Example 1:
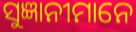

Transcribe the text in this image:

ସୁଜ୍ଞାନୀମାନେ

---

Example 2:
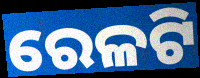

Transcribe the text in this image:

ରେଳଟି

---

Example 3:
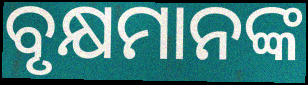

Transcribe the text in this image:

ବୃକ୍ଷମାନଙ୍କ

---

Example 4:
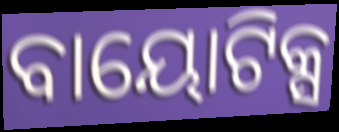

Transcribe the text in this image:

ବାୟୋଟିକ୍ସ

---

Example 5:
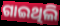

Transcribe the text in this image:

ଗାଇଥିଲି